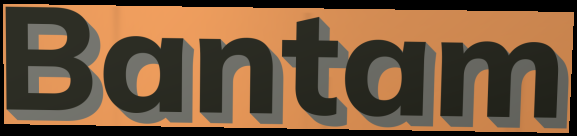
Bantam